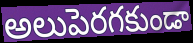
అలుపెరగకుండా